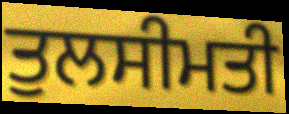
ਤੁਲਸੀਮਤੀ